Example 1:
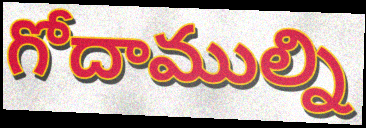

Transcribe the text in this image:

గోదాముల్ని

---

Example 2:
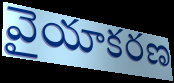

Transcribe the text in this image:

వైయాకరణ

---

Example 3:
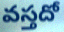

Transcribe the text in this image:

వస్తదో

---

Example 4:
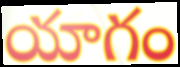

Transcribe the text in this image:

యాగం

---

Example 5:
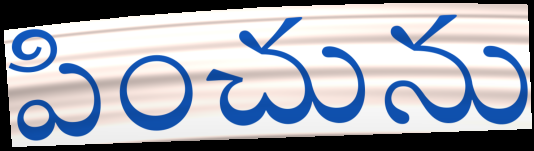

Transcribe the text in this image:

పించును